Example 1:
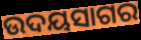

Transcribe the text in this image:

ଉଦୟସାଗର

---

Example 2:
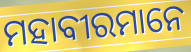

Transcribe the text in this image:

ମହାବୀରମାନେ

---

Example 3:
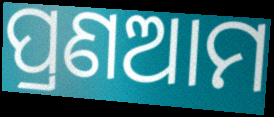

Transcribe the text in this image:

ପ୍ରଣଆମ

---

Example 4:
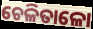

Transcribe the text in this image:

ଚେଳିତାଳୋ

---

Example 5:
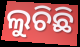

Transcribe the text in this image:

ଲୁଚିଛି